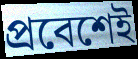
প্রবেশেই